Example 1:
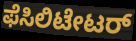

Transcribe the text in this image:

ಫೆಸಿಲಿಟೇಟರ್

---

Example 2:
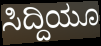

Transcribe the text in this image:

ಸಿದ್ದಿಯೂ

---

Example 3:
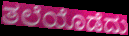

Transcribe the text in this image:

ತಲೆಯೊಡೆದು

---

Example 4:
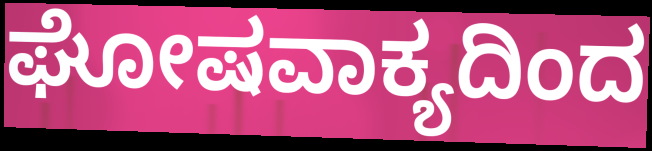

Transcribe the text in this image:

ಘೋಷವಾಕ್ಯದಿಂದ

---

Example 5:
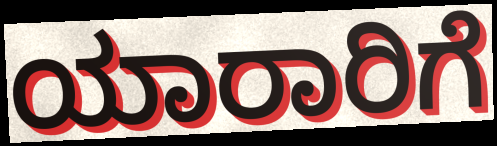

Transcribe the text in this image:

ಯಾರಾರಿಗೆ